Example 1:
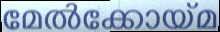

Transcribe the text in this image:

മേൽക്കോയ്മ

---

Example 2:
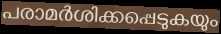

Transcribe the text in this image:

പരാമർശിക്കപ്പെടുകയും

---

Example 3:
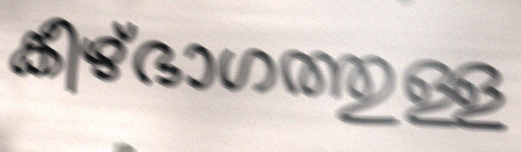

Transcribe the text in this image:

കീഴ്ഭാഗത്തുള്ള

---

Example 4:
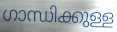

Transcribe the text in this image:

ഗാന്ധിക്കുള്ള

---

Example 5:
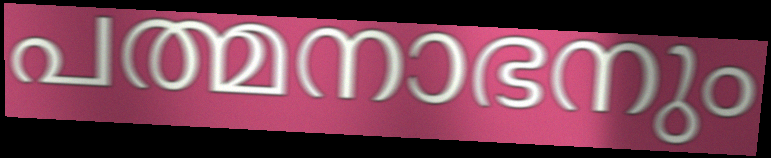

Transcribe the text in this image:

പത്മനാഭനും